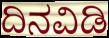
ದಿನವಿಡಿ